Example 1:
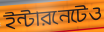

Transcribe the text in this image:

ইন্টারনেটেও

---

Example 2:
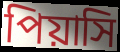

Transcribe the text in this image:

পিয়াসি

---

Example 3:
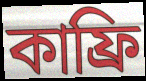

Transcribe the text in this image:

কাফ্রি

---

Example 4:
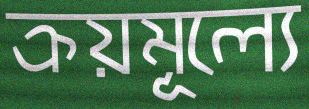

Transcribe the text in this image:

ক্রয়মূল্যে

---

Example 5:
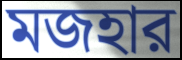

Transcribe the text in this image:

মজহার